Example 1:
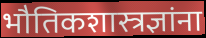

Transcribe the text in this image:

भौतिकशास्त्रज्ञांना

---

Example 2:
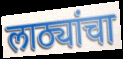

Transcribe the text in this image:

लाठ्यांचा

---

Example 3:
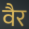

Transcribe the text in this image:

वैर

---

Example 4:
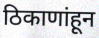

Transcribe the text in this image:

ठिकाणांहून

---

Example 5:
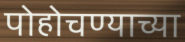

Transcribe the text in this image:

पोहोचण्याच्या